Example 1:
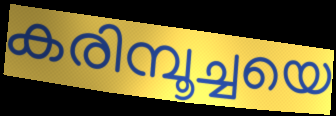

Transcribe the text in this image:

കരിമ്പൂച്ചയെ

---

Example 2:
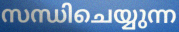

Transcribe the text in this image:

സന്ധിചെയ്യുന്ന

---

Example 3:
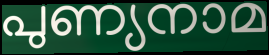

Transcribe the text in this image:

പുണ്യനാമ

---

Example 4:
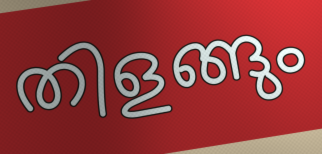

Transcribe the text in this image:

തിളങ്ങും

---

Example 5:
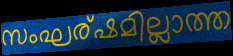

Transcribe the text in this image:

സംഘര്ഷമില്ലാത്ത